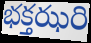
భక్తఝరి